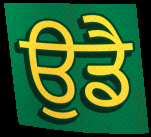
ਉਡੈ